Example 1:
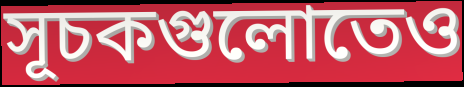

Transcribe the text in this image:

সূচকগুলোতেও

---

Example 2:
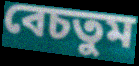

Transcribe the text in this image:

বেচতুম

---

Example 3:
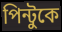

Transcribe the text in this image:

পিন্টুকে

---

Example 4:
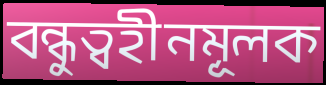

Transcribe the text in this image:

বন্ধুত্বহীনমূলক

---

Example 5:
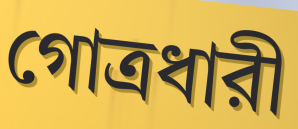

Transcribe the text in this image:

গোত্রধারী